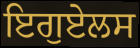
ਇਗੁਏਲਸ